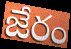
జేరం